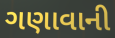
ગણાવાની